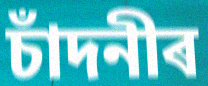
চাঁদনীৰ